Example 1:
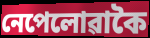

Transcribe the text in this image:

নেপেলোৱাকৈ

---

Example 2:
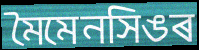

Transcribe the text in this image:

মৈমেনসিঙৰ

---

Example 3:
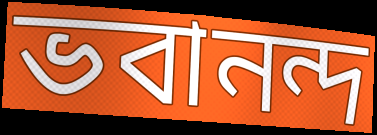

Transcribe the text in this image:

ভবানন্দ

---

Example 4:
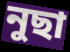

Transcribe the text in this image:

নুছা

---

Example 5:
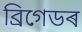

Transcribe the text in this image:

ব্ৰিগেডৰ